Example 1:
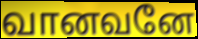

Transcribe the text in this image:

வானவனே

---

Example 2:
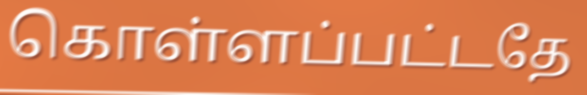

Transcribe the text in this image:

கொள்ளப்பட்டதே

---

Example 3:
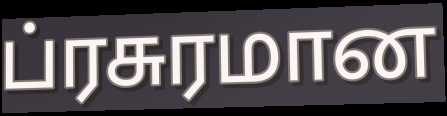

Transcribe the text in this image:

ப்ரசுரமான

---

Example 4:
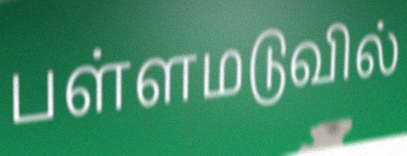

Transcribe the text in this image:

பள்ளமடுவில்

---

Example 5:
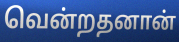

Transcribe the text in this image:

வென்றதனான்